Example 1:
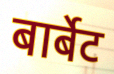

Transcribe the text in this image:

बार्बेट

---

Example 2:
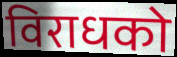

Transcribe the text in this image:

विराधको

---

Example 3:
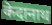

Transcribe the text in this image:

केदानाथ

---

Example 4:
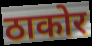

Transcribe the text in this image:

ठाकोर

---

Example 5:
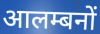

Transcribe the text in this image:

आलम्बनों